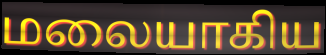
மலையாகிய